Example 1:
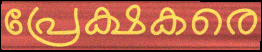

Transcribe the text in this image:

പ്രേക്ഷകരെ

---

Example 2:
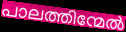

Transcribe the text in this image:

പാലത്തിന്മേൽ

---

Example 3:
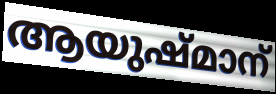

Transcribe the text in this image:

ആയുഷ്മാന്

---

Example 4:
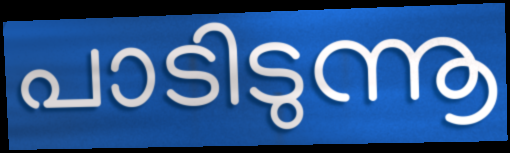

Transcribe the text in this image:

പാടിടുന്നൂ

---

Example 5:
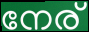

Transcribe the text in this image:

നേര്